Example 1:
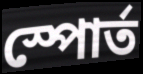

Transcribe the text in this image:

স্পোর্ত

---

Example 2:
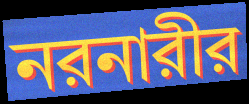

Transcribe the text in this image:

নরনারীর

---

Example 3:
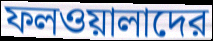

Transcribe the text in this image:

ফলওয়ালাদের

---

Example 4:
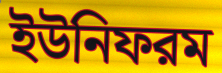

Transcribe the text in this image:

ইউনিফরম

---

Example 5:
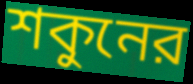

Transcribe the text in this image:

শকুনের